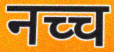
नच्च